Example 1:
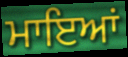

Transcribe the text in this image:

ਮਾਇਆਂ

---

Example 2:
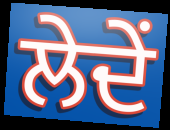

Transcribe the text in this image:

ਲੇਦੇਂ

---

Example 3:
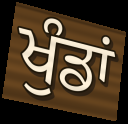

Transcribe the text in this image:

ਖੁੰਡਾਂ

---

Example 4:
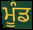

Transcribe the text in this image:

ਮੂੰਡ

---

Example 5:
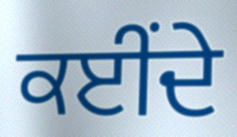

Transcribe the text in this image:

ਕਈਂਦੇ